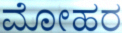
ಮೋಹರ